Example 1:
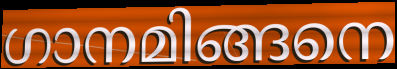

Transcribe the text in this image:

ഗാനമിങ്ങനെ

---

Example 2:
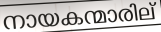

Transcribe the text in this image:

നായകന്മാരില്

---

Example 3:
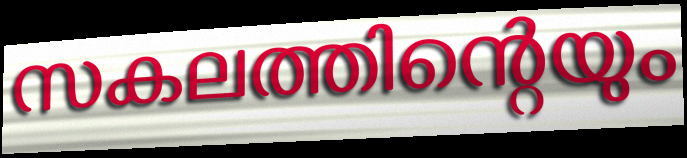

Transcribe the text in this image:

സകലത്തിന്റെയും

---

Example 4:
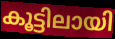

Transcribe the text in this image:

കൂട്ടിലായി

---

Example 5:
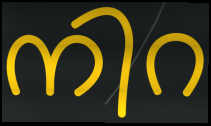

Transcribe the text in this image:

നിറ